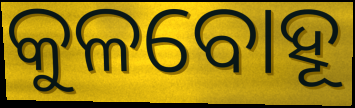
କୁଳବୋହୂ